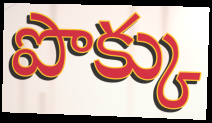
పొక్కు